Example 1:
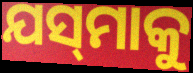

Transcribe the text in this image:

ଯସ୍‌ମାକୁ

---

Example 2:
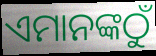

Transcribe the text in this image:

ଏମାନଙ୍କଠୁଁ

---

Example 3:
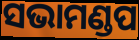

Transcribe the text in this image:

ସଭାମଣ୍ଡପ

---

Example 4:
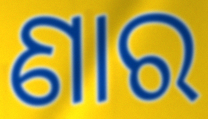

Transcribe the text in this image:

ଣାର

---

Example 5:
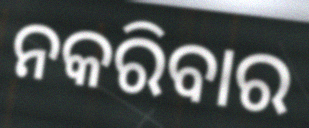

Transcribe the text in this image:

ନକରିବାର